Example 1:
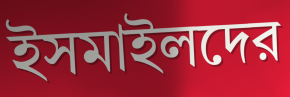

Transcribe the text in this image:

ইসমাইলদের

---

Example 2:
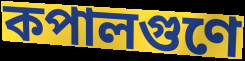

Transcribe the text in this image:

কপালগুণে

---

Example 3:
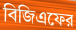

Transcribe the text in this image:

বিজিএফের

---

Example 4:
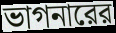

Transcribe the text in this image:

ভাগনারের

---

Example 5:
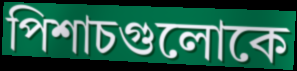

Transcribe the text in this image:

পিশাচগুলোকে